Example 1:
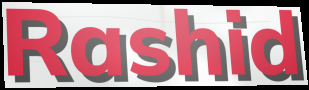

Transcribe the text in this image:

Rashid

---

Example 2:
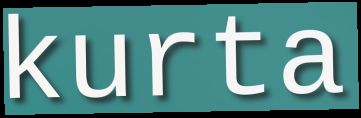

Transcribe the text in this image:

kurta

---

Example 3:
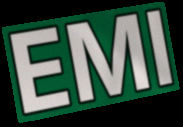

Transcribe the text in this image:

EMI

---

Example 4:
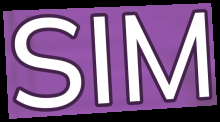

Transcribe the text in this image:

SIM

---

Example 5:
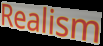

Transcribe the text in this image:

Realism